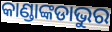
କାଣ୍ଡାଙ୍କଡାଭୁର